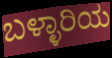
ಬಳ್ಳಾರಿಯ